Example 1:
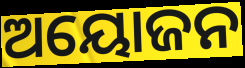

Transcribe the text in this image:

ଅୟୋଜନ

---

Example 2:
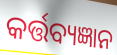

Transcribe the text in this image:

କର୍ତ୍ତବ୍ୟଜ୍ଞାନ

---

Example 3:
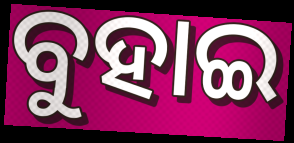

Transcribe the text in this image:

ବୁହାଇ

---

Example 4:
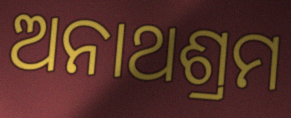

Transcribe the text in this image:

ଅନାଥଶ୍ରମ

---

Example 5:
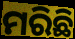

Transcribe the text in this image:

ମରିଛି